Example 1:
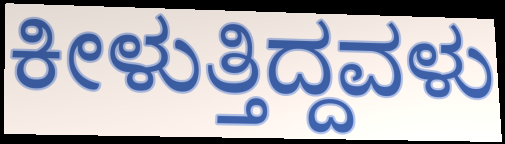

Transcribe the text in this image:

ಕೀಳುತ್ತಿದ್ದವಳು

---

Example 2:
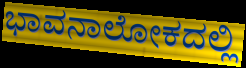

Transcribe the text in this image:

ಭಾವನಾಲೋಕದಲ್ಲಿ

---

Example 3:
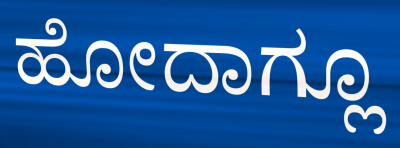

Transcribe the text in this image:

ಹೋದಾಗ್ಲೂ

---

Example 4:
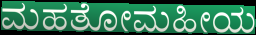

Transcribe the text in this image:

ಮಹತೋಮಹೀಯ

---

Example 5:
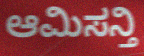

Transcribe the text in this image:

ಆಮಿಸನ್ತಿ